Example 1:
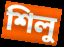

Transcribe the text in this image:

শিলু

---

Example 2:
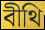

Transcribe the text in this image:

বীথি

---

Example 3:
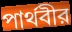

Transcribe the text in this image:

পার্থবীর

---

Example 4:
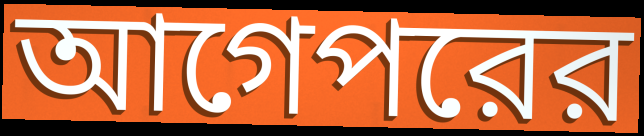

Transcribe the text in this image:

আগেপরের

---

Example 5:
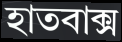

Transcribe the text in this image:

হাতবাক্স